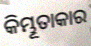
କିମ୍ଭୂତାକାର